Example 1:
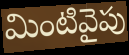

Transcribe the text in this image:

మింటివైపు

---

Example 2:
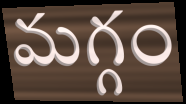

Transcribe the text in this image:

మగ్గం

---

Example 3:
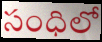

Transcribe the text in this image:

సంధిలో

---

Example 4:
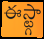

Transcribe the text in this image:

ఈస్ట్గా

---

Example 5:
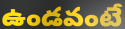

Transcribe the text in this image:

ఉండవంటే